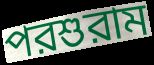
পরশুরাম